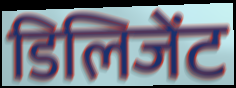
डिलिजेंट